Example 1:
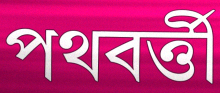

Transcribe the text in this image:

পথবর্ত্তী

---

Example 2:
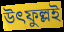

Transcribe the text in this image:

উৎফুল্লই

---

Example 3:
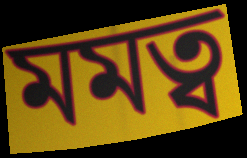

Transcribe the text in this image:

মমত্ব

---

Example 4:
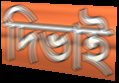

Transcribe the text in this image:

দিভাই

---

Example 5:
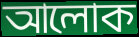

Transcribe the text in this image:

আলোক